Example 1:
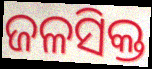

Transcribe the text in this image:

ଜଳସିକ୍ତ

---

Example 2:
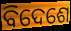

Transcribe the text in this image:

ବିଦେଶେ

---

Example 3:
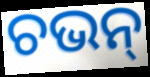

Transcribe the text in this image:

ଚଭନ୍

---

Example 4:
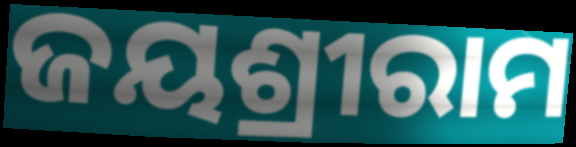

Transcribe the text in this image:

ଜୟଶ୍ରୀରାମ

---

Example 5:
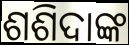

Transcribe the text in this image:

ଶଶିଦାଙ୍କ